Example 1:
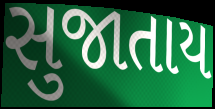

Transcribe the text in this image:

સુજાતાય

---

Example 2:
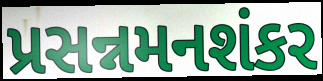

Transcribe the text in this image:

પ્રસન્નમનશંકર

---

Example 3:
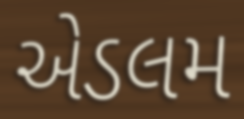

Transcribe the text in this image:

એડલમ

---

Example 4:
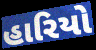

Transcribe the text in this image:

હારિયો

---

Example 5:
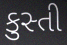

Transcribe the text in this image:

કુસ્તી